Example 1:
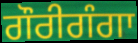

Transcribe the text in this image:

ਗੌਰੀਗੰਗਾ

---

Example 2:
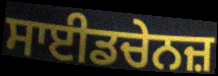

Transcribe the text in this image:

ਸਾਈਡਚੇਨਜ਼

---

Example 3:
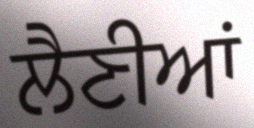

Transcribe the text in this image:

ਲੈਣੀਆਂ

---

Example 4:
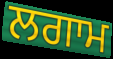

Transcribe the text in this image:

ਲਗਾਮ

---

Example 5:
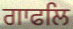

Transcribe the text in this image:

ਗਾਫਲਿ